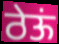
ठेऊं